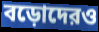
বড়োদেরও